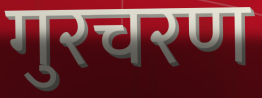
गुरचरण